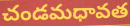
చండమధావత